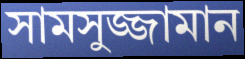
সামসুজ্জামান